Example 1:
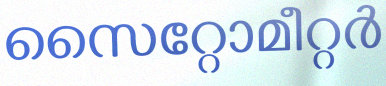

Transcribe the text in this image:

സൈറ്റോമീറ്റർ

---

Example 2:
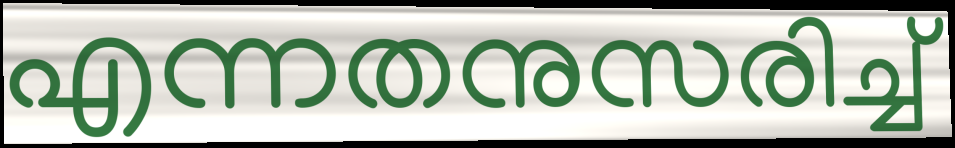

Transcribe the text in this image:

എന്നതനുസരിച്ച്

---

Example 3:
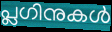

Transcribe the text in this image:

പ്ലഗിനുകൾ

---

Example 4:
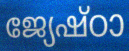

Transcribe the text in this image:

ജ്യേഷ്ഠാ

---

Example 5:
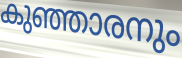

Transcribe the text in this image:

കുഞ്ഞാരനും